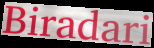
Biradari